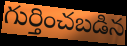
గుర్తించబడిన